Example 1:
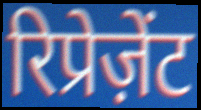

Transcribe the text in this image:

रिप्रेज़ेंट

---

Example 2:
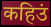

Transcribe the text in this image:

कहिउं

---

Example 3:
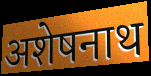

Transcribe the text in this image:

अशेषनाथ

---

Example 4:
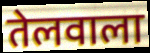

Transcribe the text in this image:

तेलवाला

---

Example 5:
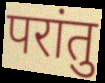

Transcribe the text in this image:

परांतु